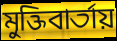
মুক্তিবার্তায়